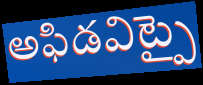
అఫిడవిట్పై